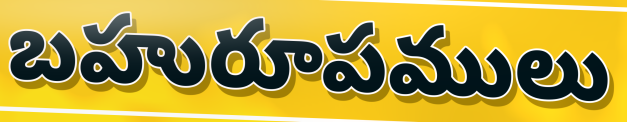
బహురూపములు